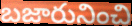
బజారునించి